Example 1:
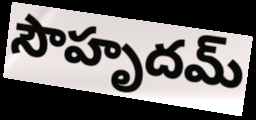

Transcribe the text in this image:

సౌహృదమ్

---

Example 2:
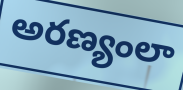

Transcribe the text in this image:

అరణ్యంలా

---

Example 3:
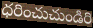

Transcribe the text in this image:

ధరించుచుండిరి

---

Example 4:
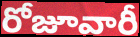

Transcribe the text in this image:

రోజూవారీ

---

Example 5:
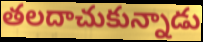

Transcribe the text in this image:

తలదాచుకున్నాడు